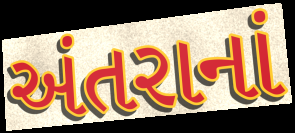
અંતરાનાં